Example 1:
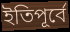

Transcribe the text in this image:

ইতিপূৰ্বে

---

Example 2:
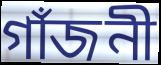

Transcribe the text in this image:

গাঁজনী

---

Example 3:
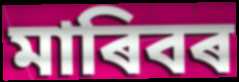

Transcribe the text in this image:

মাৰিবৰ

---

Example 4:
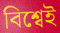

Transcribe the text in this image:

বিশ্বেই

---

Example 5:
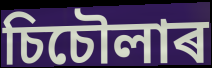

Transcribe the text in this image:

চিচৌলাৰ